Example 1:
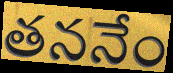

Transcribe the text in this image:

తననేం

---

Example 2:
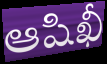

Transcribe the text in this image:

ఆషిఖీ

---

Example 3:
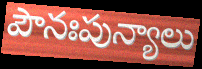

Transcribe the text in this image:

పౌనఃపున్యాలు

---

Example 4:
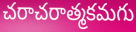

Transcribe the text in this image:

చరాచరాత్మకమగు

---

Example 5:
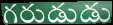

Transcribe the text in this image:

గరుడుడు